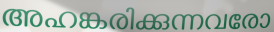
അഹങ്കരിക്കുന്നവരോ